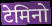
टेमिनो